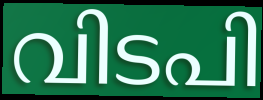
വിടപി